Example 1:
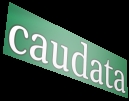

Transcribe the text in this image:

caudata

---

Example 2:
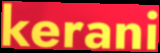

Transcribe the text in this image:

kerani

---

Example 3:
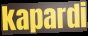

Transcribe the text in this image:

kapardi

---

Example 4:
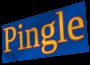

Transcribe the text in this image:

Pingle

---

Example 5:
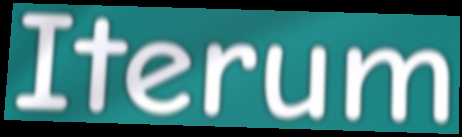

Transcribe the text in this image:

Iterum